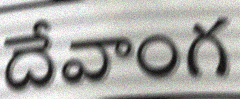
దేవాంగ